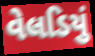
વેલડિયું